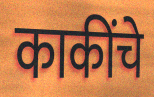
काकींचे